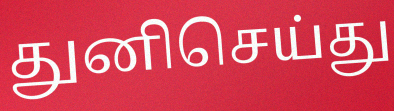
துனிசெய்து